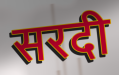
सरदी